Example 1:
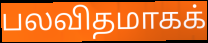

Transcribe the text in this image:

பலவிதமாகக்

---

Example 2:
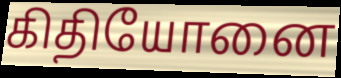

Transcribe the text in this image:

கிதியோனை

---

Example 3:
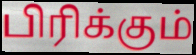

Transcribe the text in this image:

பிரிக்கும்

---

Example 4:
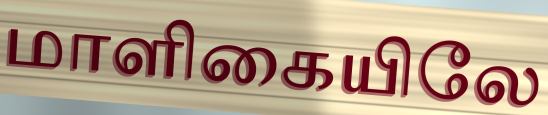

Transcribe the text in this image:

மாளிகையிலே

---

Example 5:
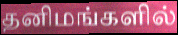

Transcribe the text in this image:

தனிமங்களில்